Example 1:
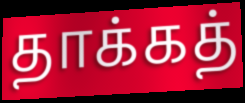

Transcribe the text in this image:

தாக்கத்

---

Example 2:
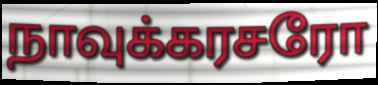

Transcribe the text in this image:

நாவுக்கரசரோ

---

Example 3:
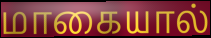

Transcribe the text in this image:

மாகையால்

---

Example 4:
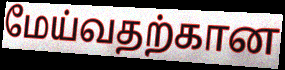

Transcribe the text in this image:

மேய்வதற்கான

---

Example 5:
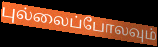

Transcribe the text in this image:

புல்லைப்போலவும்